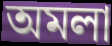
অমলা